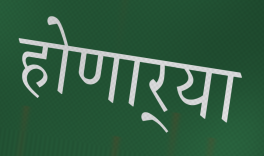
होणार्या